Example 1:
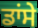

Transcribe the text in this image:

ਡਾਂਸੇ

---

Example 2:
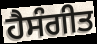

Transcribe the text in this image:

ਹੈਸੰਗੀਤ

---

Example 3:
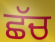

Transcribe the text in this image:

ਛੱਚ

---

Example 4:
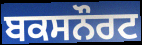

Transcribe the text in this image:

ਬਕਸਨੌਰਟ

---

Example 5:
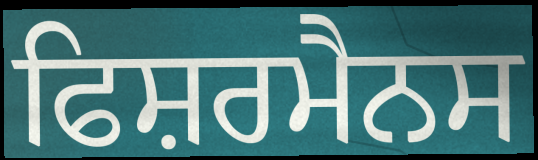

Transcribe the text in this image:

ਫਿਸ਼ਰਮੈਨਸ